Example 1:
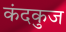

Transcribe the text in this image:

कंदकुज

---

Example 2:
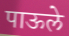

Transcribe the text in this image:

पाऊले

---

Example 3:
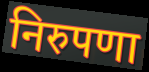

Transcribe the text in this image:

निरुपणा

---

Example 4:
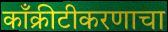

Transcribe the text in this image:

काँक्रीटीकरणाचा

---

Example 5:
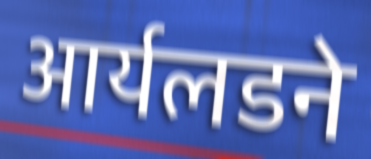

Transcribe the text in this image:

आर्यलडने